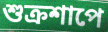
শুক্রশাপে